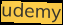
udemy